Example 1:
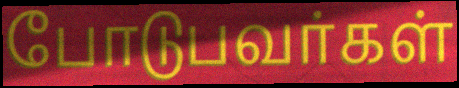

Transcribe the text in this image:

போடுபவர்கள்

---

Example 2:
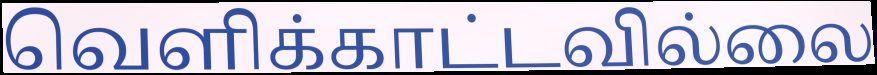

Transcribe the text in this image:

வெளிக்காட்டவில்லை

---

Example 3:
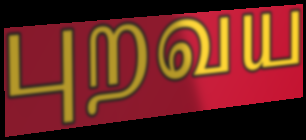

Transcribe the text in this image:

புறவய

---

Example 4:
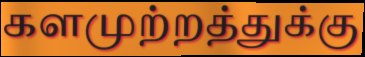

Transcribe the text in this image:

களமுற்றத்துக்கு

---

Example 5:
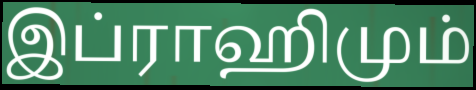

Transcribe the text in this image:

இப்ராஹிமும்